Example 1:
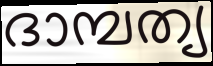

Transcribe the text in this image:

ദാമ്പത്യ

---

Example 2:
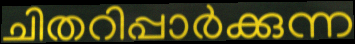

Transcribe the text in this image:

ചിതറിപ്പാർക്കുന്ന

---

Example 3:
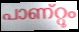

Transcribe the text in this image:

പാണ്റ്റും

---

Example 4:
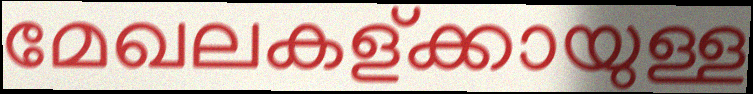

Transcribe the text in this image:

മേഖലകള്ക്കായുള്ള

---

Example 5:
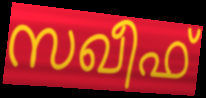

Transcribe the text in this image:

സഖീഫ്